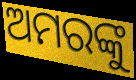
ଅମରଙ୍କୁ